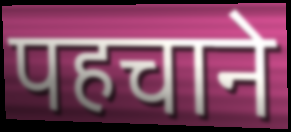
पहचाने